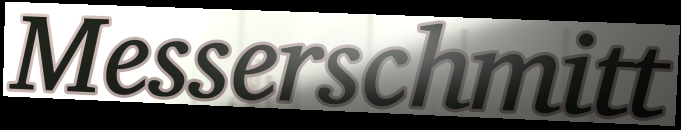
Messerschmitt